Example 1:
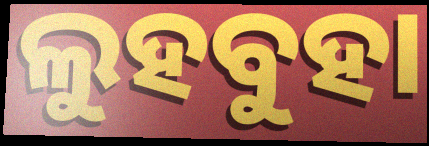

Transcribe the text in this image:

ଲୁହବୁହା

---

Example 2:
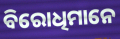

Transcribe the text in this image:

ବିରୋଧିମାନେ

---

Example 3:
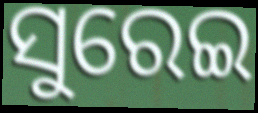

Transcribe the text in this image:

ସୁରେଇ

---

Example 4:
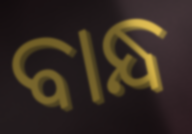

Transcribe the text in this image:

ବାନ୍ଧ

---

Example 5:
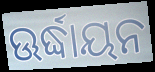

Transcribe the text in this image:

ଊର୍ଦ୍ଧାୟନ